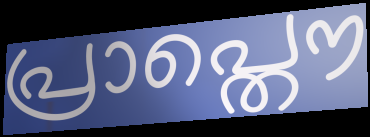
പ്രാപ്തൌ